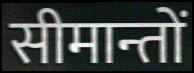
सीमान्तों